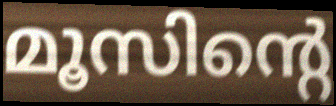
മൂസിന്റെ